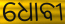
ଧୋବୀ